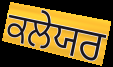
ਕਲੇਯਰ